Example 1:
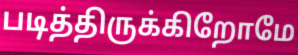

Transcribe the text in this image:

படித்திருக்கிறோமே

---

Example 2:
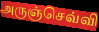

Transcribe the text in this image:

அருஞ்செவ்வி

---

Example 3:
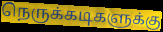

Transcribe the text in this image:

நெருக்கடிகளுக்கு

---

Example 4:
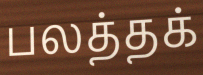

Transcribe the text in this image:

பலத்தக்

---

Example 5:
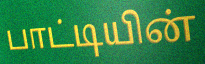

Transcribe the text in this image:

பாட்டியின்